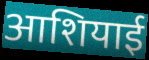
आशियाई